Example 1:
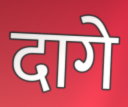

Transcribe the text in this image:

दागे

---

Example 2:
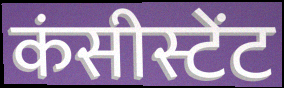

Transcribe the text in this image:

कंसीस्टेंट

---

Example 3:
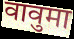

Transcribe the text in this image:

वावुमा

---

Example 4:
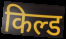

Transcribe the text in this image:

किल्ड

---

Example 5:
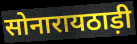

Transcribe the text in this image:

सोनारायठाड़ी